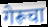
गेरूचा